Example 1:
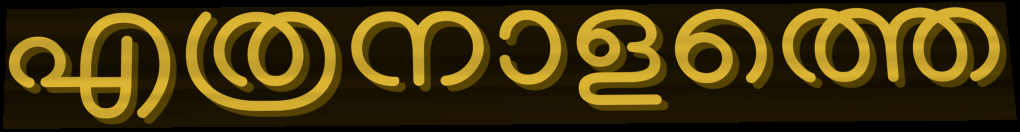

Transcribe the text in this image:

എത്രനാളത്തെ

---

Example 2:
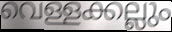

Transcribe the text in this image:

വെള്ളക്കല്ലും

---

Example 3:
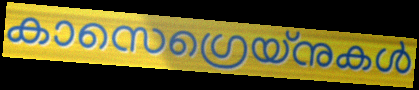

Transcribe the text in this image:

കാസെഗ്രെയ്നുകൾ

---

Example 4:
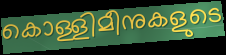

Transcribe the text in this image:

കൊള്ളിമീനുകളുടെ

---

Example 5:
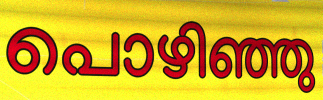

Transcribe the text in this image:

പൊഴിഞ്ഞു